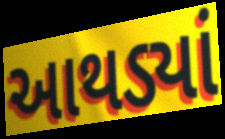
આથડ્યાં